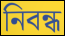
নিবন্ধ